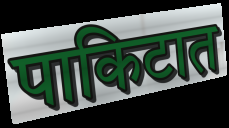
पाकिटात